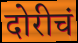
दोरीचं